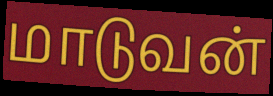
மாடுவன்